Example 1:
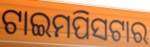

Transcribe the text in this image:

ଟାଇମପିସଟାର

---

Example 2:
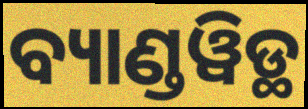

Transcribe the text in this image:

ବ୍ୟାଣ୍ଡୱିଡ୍ଥ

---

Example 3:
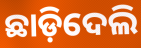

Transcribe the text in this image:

ଛାଡ଼ିଦେଲି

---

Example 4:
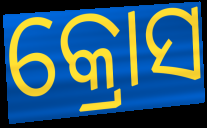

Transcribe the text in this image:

କ୍ରୋସ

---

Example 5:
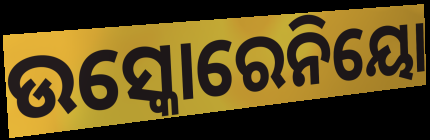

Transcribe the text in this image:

ଉସ୍କୋରେନିୟୋ